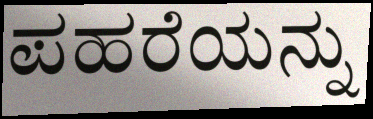
ಪಹರೆಯನ್ನು